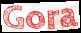
Gora